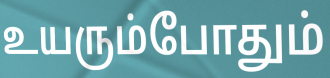
உயரும்போதும்